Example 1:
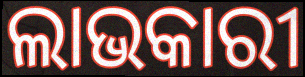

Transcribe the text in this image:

ଲାଭକାରୀ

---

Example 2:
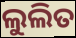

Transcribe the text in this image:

ଲୁଲିତ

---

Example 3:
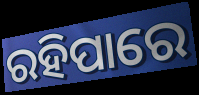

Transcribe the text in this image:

ରହିପାରେ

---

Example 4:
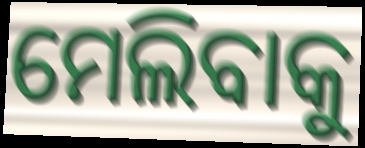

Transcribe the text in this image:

ମେଲିବାକୁ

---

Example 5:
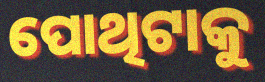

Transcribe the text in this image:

ପୋଥିଟାକୁ